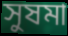
সুষমা